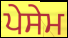
ਪੇਸੇਮ